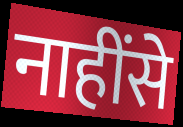
नाहींसे